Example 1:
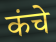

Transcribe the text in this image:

कंचे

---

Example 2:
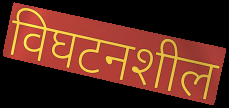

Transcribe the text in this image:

विघटनशील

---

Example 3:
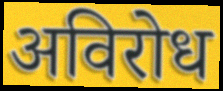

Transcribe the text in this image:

अविरोध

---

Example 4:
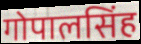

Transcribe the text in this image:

गोपालसिंह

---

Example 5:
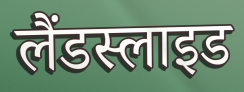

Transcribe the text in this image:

लैंडस्लाइड